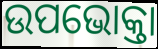
ଉପଭୋକ୍ତା